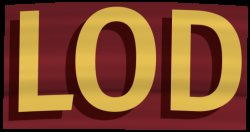
LOD